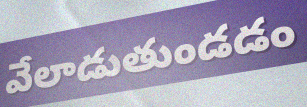
వేలాడుతుండడం